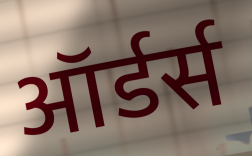
ऑर्डर्स